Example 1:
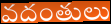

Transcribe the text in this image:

వదంతులు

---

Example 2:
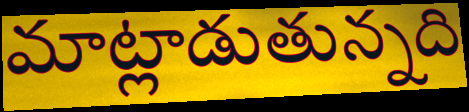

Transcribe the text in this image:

మాట్లాడుతున్నది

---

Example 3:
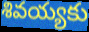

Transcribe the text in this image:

శివయ్యకు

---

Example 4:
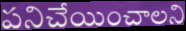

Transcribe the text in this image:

పనిచేయించాలని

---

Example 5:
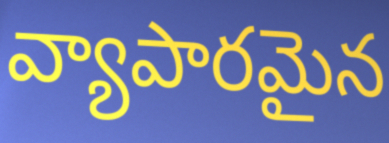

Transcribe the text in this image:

వ్యాపారమైన